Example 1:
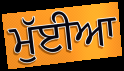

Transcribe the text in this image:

ਮੁੱਈਆ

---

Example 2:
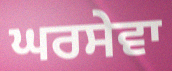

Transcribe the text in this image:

ਘਰਸੇਵਾ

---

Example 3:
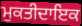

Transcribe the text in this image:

ਮੁਕਤੀਦਾਇਕ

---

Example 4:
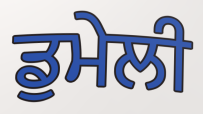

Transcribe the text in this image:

ਡੁਮੇਲੀ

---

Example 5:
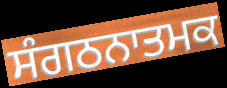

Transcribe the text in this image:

ਸੰਗਠਨਾਤਮਕ